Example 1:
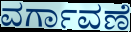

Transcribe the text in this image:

ವರ್ಗಾವಣೆ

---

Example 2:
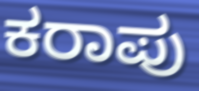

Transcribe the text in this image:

ಕರಾಪು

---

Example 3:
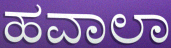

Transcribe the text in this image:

ಹವಾಲಾ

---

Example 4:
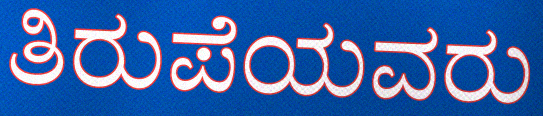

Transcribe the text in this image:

ತಿರುಪೆಯವರು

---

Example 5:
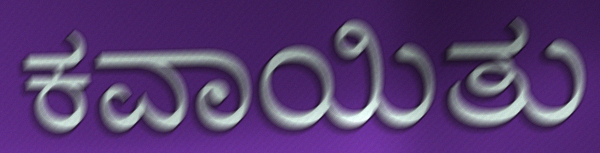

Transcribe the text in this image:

ಕವಾಯಿತು